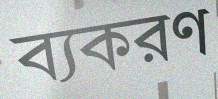
ব্যকরণ